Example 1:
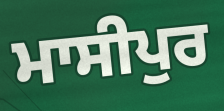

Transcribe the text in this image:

ਮਾਸੀਪੁਰ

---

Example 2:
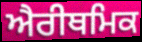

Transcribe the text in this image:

ਐਰੀਥਮਿਕ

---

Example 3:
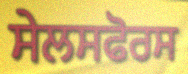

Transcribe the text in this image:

ਸੇਲਸਫੋਰਸ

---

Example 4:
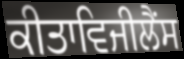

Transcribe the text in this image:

ਕੀਤਾਵਿਜੀਲੈਂਸ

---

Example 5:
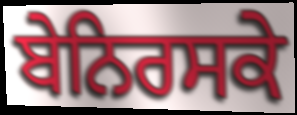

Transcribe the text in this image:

ਬੇਨਿਰਸਕੇ